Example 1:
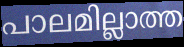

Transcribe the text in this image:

പാലമില്ലാത്ത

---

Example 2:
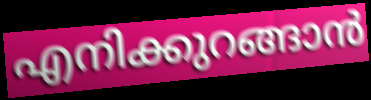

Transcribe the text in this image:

എനിക്കുറങ്ങാൻ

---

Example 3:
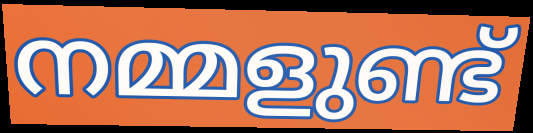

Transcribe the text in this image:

നമ്മളുണ്ട്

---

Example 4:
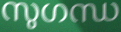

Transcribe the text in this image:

സുഗന്ധ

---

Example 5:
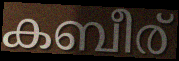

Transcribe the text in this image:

കബീര്